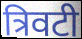
त्रिवटी